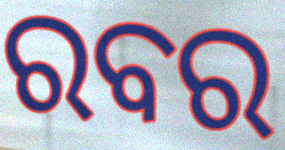
ରବର